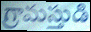
గ్రామస్తుడి